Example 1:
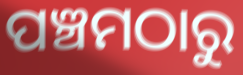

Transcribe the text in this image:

ପଞ୍ଚମଠାରୁ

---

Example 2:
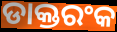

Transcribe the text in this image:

ଡାକ୍ତରଂକ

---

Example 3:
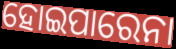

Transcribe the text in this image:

ହୋଇପାରେନା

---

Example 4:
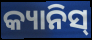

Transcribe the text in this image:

କ୍ୟାନିସ୍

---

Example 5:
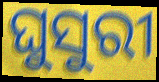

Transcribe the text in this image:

ଘୁସୁରୀ